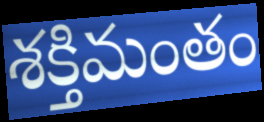
శక్తిమంతం